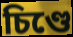
চিণ্ডে